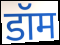
डॉम